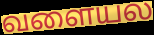
வளையல